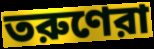
তরুণেরা